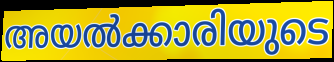
അയൽക്കാരിയുടെ